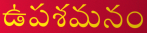
ఉపశమనం